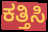
ಕತ್ತಿಸಿ